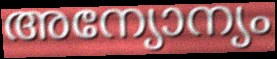
അന്യോന്യം